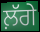
ਲ਼ੱਗੇ